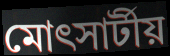
মোৎসার্টীয়